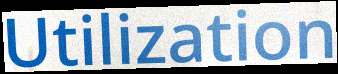
Utilization